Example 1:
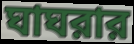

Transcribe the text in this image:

ঘাঘরার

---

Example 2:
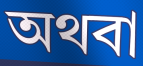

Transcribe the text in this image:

অথবা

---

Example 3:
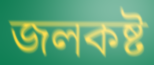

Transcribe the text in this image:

জলকষ্ট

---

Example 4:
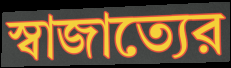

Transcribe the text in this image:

স্বাজাত্যের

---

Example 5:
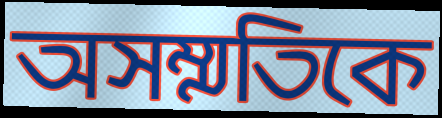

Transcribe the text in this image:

অসম্মতিকে